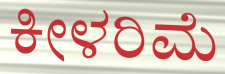
ಕೀಳರಿಮೆ